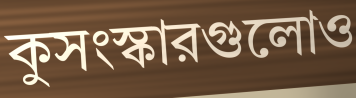
কুসংস্কারগুলোও